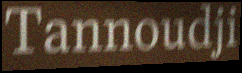
Tannoudji